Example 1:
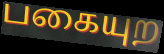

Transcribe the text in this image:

பகையுற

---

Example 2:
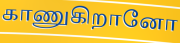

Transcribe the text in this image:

காணுகிறானோ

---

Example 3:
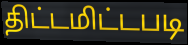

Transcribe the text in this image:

திட்டமிட்டபடி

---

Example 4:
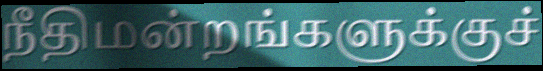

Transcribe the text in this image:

நீதிமன்றங்களுக்குச்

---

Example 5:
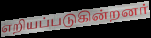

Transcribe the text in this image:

எறியப்படுகின்றனர்